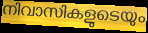
നിവാസികളുടെയും